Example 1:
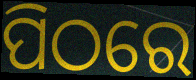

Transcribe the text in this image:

ପିଠରେ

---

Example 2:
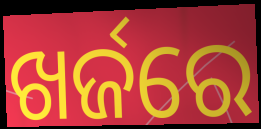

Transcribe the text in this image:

ଖର୍ଜରେ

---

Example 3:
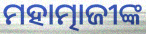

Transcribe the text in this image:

ମହାତ୍ମାଜୀଙ୍କ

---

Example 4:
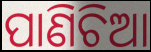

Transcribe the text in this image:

ପାଣିଚିଆ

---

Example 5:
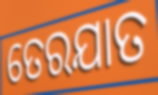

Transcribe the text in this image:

ତେରଯାତ